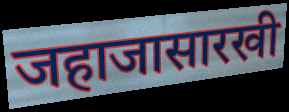
जहाजासारखी